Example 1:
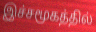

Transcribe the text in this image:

இச்சமூகத்தில்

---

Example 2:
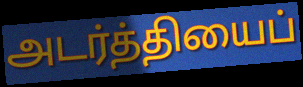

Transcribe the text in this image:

அடர்த்தியைப்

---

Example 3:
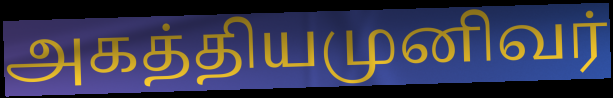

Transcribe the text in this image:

அகத்தியமுனிவர்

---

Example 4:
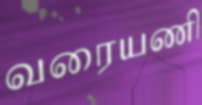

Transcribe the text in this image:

வரையணி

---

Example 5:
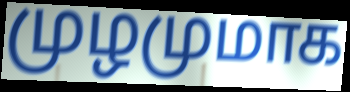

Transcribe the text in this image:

முழமுமாக